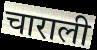
चाराली